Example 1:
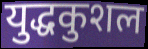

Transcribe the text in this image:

युद्धकुशल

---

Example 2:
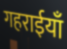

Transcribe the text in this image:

गहराईयाँ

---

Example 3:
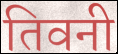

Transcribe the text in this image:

तिवनी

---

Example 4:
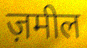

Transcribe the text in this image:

ज़मील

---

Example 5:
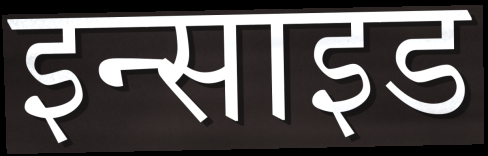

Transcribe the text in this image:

इन्साइड